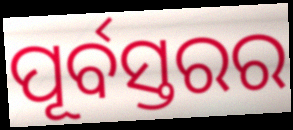
ପୂର୍ବସ୍ତରର